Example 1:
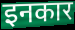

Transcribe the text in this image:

इनकार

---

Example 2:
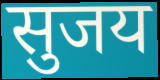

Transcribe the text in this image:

सुजय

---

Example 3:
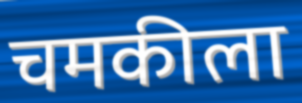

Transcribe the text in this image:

चमकीला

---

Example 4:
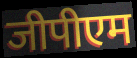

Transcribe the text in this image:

जीपीएम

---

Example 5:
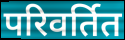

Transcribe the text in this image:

परिवर्तित